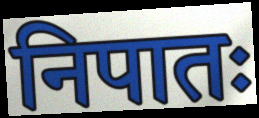
निपातः